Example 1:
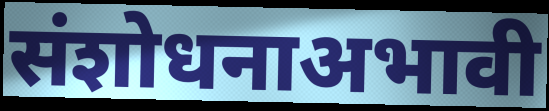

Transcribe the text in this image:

संशोधनाअभावी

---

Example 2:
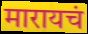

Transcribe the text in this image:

मारायचं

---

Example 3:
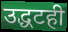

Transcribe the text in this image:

उद्धटही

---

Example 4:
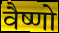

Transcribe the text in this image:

वैष्णो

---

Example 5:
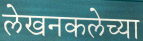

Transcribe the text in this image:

लेखनकलेच्या